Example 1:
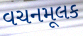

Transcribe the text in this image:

વચનમૂલક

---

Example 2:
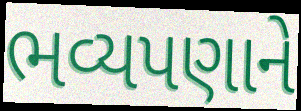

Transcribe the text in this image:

ભવ્યપણાને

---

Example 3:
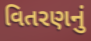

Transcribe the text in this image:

વિતરણનું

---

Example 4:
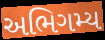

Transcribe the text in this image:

અભિગમ્ય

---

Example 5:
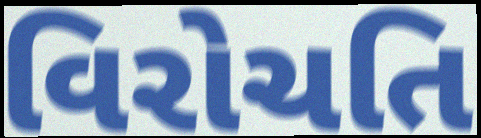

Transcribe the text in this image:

વિરોચતિ